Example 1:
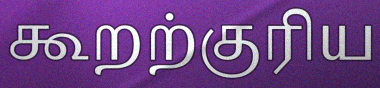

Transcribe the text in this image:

கூறற்குரிய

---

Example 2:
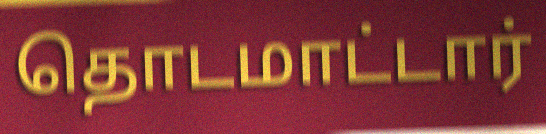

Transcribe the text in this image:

தொடமாட்டார்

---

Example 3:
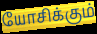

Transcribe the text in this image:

யோசிக்கும்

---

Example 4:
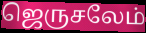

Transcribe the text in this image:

ஜெருசலேம்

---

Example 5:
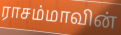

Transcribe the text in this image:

ராசம்மாவின்